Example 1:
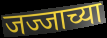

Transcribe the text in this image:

जज्जाच्या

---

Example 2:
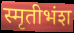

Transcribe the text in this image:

स्मृतीभंश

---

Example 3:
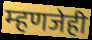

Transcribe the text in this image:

म्हणजेही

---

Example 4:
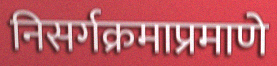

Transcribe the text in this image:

निसर्गक्रमाप्रमाणे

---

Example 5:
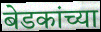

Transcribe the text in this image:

बेडकांच्या